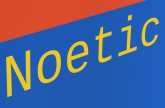
Noetic